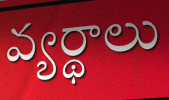
వ్యర్థాలు